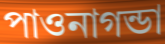
পাওনাগন্ডা